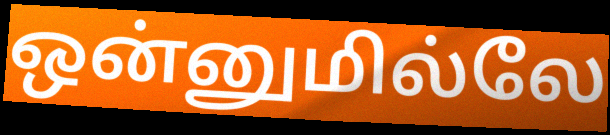
ஒன்னுமில்லே